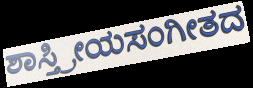
ಶಾಸ್ತ್ರೀಯಸಂಗೀತದ